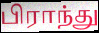
பிராந்து